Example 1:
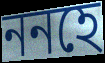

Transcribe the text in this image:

ননহে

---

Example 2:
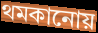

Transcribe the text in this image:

থমকানোয়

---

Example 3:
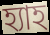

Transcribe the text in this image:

হ্যাহ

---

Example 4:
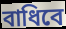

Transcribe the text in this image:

বাধিবে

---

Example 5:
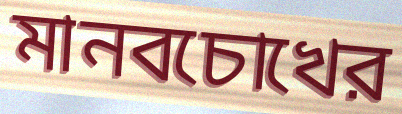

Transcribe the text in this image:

মানবচোখের